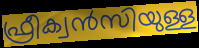
ഫ്രീക്വൻസിയുള്ള